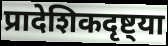
प्रादेशिकदृष्ट्या